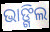
ଭାଙ୍ଗିଲ